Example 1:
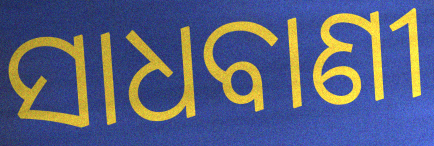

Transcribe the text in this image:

ସାଧବାଣୀ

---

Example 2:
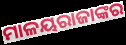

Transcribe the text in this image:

ମାଳୟରାଜାଙ୍କର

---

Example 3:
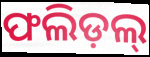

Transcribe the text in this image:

ଫଲିଡ଼ଲ୍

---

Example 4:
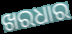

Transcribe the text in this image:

ଖରଧାର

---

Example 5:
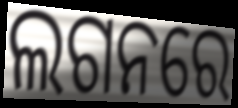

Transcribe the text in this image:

ଲଗନରେ